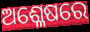
ଅଶ୍ଳେଷରେ